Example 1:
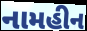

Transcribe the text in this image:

નામહીન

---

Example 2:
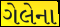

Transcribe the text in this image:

ગેલેના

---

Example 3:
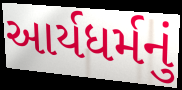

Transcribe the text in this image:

આર્યધર્મનું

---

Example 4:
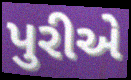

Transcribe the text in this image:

પુરીએ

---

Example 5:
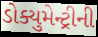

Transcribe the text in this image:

ડોક્યુમેન્ટ્રીની